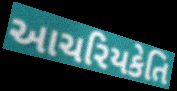
આચરિયકેતિ